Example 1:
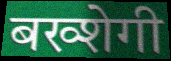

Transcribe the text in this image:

बख्शेगी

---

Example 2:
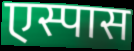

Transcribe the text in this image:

एस्पास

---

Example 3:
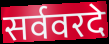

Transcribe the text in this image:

सर्ववरदे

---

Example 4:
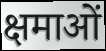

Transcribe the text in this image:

क्षमाओं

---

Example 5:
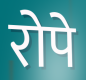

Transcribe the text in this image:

रोपे